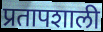
प्रतापशाली